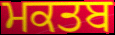
ਮਕਤਬ